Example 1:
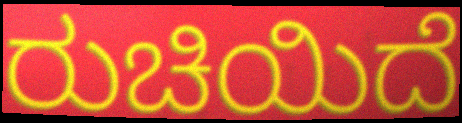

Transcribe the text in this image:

ರುಚಿಯಿದೆ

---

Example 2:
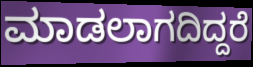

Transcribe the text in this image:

ಮಾಡಲಾಗದಿದ್ದರೆ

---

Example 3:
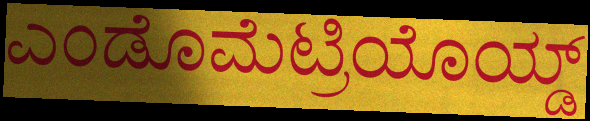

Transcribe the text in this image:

ಎಂಡೊಮೆಟ್ರಿಯೊಯ್ಡ್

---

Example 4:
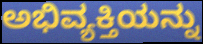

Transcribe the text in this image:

ಅಭಿವ್ಯಕ್ತಿಯನ್ನು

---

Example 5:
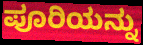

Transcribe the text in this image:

ಪೂರಿಯನ್ನು